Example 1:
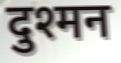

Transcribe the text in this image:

दुश्मन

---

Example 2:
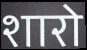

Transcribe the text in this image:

शारो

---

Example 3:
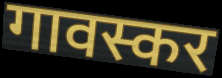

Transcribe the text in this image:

गावस्कर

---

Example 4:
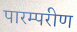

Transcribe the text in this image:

पारम्परीण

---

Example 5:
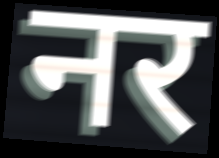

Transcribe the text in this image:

नर